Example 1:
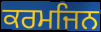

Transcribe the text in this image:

ਕਰਮਜਿਨ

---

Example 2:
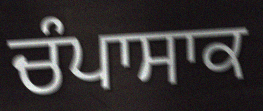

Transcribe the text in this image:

ਚੰਪਾਸਾਕ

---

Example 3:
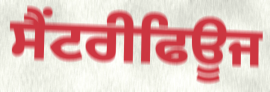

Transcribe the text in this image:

ਸੈਂਟਰੀਫਿਊਜ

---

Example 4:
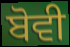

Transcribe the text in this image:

ਬੋਵੀ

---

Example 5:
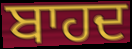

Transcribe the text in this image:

ਬਾਹਦ